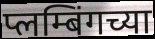
प्लम्बिंगच्या